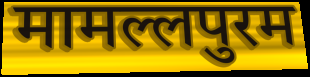
मामल्लपुरम